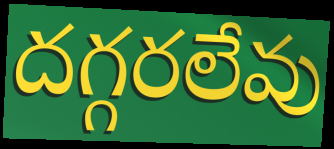
దగ్గరలేవు